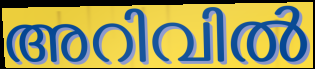
അറിവിൽ